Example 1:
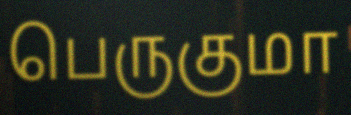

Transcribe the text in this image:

பெருகுமா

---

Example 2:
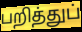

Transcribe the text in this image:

பறித்துப்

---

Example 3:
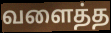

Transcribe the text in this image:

வளைத்த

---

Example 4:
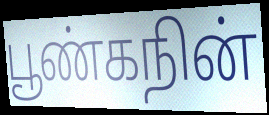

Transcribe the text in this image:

பூண்கநின்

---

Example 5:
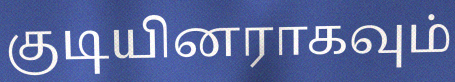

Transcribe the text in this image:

குடியினராகவும்